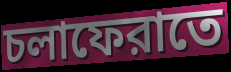
চলাফেরাতে